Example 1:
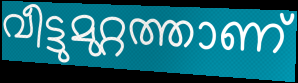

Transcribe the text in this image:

വീട്ടുമുറ്റത്താണ്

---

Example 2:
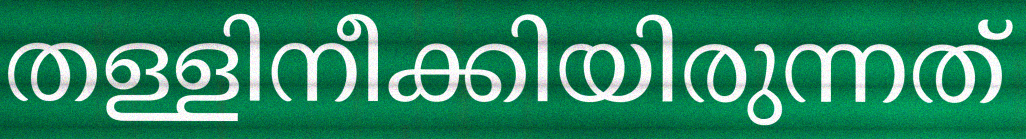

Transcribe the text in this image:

തള്ളിനീക്കിയിരുന്നത്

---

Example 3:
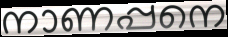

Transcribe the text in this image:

നാണപ്പനെ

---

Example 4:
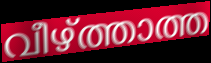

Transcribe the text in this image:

വീഴ്ത്താത്ത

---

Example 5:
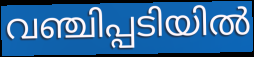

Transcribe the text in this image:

വഞ്ചിപ്പടിയിൽ